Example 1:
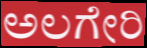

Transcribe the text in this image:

ಅಲಗೇರಿ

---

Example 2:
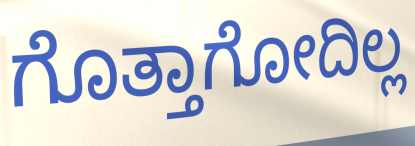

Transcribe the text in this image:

ಗೊತ್ತಾಗೋದಿಲ್ಲ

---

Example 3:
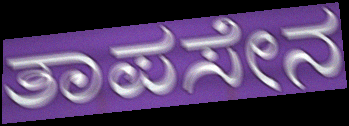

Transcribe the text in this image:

ತಾಪಸೇನ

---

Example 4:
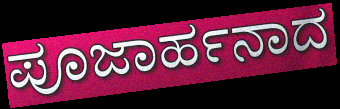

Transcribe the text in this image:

ಪೂಜಾರ್ಹನಾದ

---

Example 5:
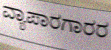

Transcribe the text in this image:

ವ್ಯಾಪಾರಗಾರರ